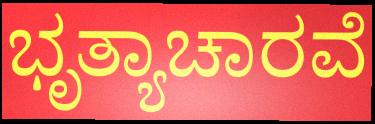
ಭೃತ್ಯಾಚಾರವೆ